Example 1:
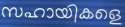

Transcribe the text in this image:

സഹായികളെ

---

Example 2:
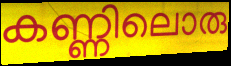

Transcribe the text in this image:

കണ്ണിലൊരു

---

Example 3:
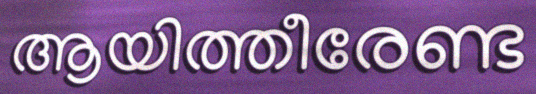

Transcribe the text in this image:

ആയിത്തീരേണ്ട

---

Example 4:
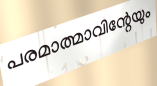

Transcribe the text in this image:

പരമാത്മാവിന്റേയും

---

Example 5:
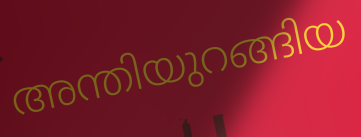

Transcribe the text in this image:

അന്തിയുറങ്ങിയ